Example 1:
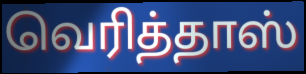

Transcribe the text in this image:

வெரித்தாஸ்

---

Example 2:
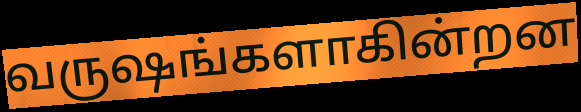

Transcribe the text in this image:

வருஷங்களாகின்றன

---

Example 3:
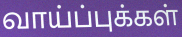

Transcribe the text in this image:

வாய்ப்புக்கள்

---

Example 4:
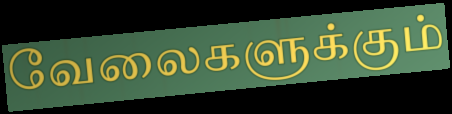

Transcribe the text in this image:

வேலைகளுக்கும்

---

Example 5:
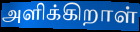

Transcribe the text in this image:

அளிக்கிறாள்